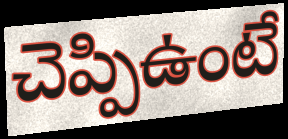
చెప్పిఉంటే